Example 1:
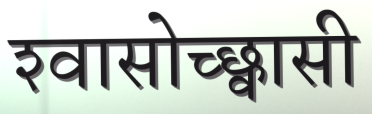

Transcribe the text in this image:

श्वासोच्छ्वासी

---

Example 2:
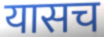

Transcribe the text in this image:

यासच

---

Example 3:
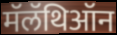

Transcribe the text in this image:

मॅलॅथिऑन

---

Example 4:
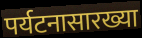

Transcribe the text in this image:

पर्यटनासारख्या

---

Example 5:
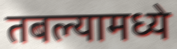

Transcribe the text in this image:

तबल्यामध्ये